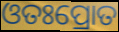
ଓତଃପ୍ରୋତ